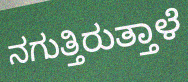
ನಗುತ್ತಿರುತ್ತಾಳೆ